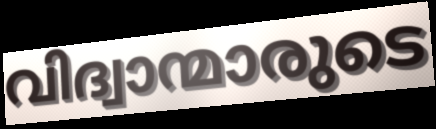
വിദ്വാന്മാരുടെ